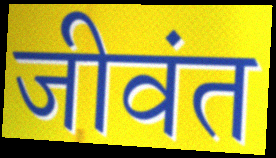
जीवंत